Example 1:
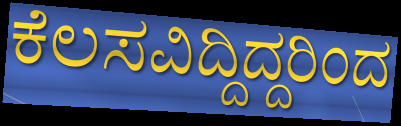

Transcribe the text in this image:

ಕೆಲಸವಿದ್ದಿದ್ದರಿಂದ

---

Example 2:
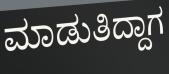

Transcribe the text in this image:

ಮಾಡುತಿದ್ದಾಗ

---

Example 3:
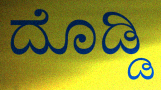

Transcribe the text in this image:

ದೊಡ್ಡಿ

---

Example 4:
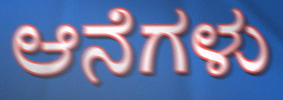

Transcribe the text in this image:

ಆನೆಗಳು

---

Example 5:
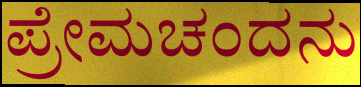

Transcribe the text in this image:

ಪ್ರೇಮಚಂದನು